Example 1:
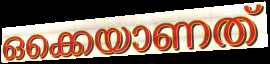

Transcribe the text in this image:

ഒക്കെയാണത്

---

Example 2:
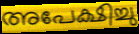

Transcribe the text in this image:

അപേക്ഷിച്ചു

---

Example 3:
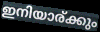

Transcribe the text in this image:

ഇനിയാര്ക്കും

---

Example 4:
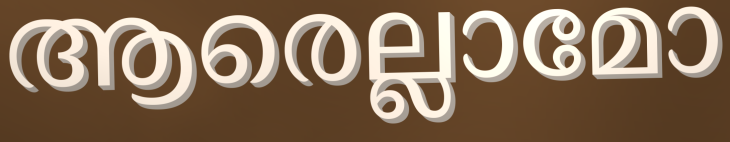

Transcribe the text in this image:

ആരെല്ലാമോ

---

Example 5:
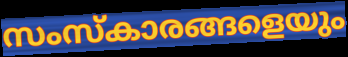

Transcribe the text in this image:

സംസ്കാരങ്ങളെയും